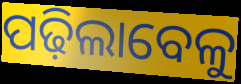
ପଢ଼ିଲାବେଳୁ